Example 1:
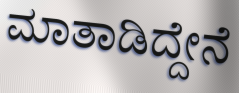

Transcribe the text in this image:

ಮಾತಾಡಿದ್ದೇನೆ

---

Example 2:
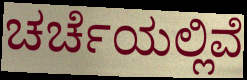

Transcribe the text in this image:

ಚರ್ಚೆಯಲ್ಲಿವೆ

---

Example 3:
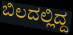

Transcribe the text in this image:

ಬಿಲದಲ್ಲಿದ್ದ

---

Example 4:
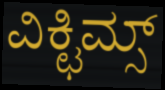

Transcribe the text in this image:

ವಿಕ್ಟಿಮ್ಸ್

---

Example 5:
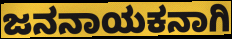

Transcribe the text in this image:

ಜನನಾಯಕನಾಗಿ